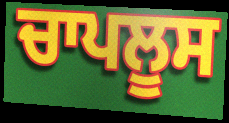
ਚਾਪਲੂਸ